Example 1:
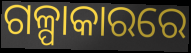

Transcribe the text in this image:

ଗଳ୍ପାକାରରେ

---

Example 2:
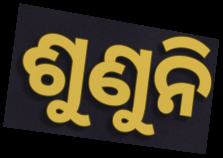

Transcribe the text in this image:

ଶୁଣୁନି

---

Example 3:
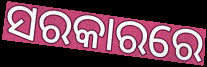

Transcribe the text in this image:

ସରକାରରେ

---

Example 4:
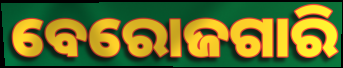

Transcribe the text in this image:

ବେରୋଜଗାରି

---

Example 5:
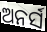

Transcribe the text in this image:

ଅନର୍ସ